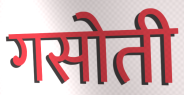
गसोती